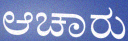
ಆಚಾರು